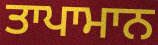
ਤਾਪਾਮਾਨ